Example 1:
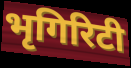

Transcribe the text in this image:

भृगिरिटी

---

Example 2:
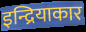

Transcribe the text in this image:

इन्द्रियाकार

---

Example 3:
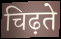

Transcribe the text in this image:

चिढ़ते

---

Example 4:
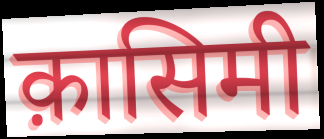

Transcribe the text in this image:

क़ासिमी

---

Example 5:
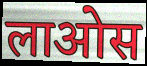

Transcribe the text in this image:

लाओस